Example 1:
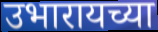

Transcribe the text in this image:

उभारायच्या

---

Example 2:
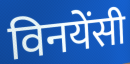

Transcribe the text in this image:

विनयेंसी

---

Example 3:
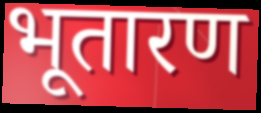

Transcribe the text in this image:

भूतारण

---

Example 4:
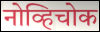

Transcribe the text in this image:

नोव्हिचोक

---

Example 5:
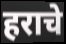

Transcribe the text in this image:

हराचे